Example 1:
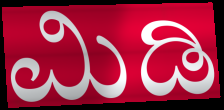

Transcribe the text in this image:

ಮಿಡಿ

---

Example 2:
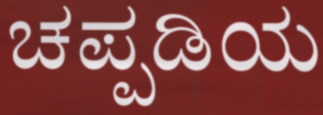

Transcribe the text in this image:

ಚಪ್ಪಡಿಯ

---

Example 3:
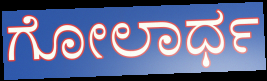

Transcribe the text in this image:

ಗೋಲಾರ್ಧ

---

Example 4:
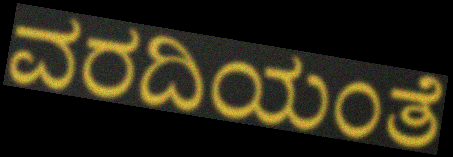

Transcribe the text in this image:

ವರದಿಯಂತೆ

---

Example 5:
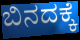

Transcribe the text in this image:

ಬಿನದಕ್ಕೆ